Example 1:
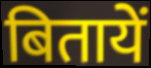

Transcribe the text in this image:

बितायें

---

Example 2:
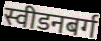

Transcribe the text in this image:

स्वीडनबर्ग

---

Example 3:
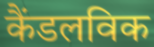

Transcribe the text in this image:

कैंडलविक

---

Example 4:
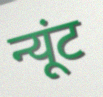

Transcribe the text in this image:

न्यूंट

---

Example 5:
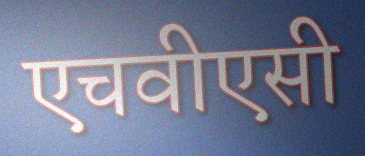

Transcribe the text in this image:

एचवीएसी